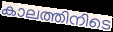
കാലത്തിനിടെ